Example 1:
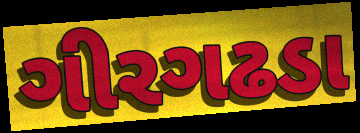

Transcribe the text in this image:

ગીરગઢડા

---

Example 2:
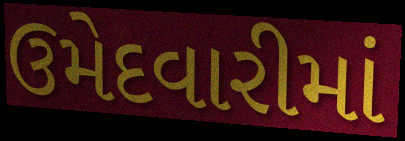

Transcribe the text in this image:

ઉમેદવારીમાં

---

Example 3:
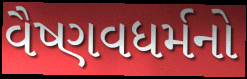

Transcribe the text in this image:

વૈષ્ણવધર્મનો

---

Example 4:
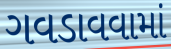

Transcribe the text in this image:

ગવડાવવામાં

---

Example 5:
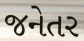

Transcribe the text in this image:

જનેતર